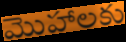
మొహాలకు